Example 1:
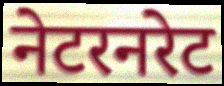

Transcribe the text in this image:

नेटरनरेट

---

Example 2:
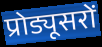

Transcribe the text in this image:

प्रोड्यूसरों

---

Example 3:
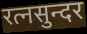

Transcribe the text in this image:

रत्नसुन्दर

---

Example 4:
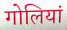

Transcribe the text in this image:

गोलियां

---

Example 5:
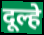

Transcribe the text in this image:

दूल्हे